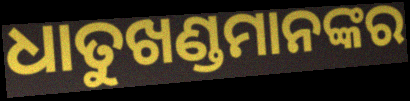
ଧାତୁଖଣ୍ଡମାନଙ୍କର